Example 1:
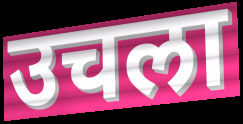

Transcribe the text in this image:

उचला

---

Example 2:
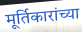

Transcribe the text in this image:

मूर्तिकारांच्या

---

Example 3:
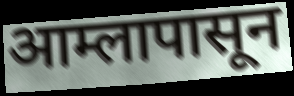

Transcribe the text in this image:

आम्लापासून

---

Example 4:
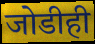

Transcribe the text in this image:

जोडीही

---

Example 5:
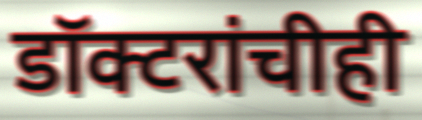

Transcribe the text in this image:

डॉक्टरांचीही